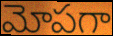
మోపగా